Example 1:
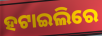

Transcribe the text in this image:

ହଟାଇଲିରେ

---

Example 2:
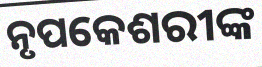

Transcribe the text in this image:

ନୃପକେଶରୀଙ୍କ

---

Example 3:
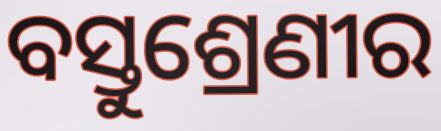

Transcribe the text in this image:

ବସ୍ତୁଶ୍ରେଣୀର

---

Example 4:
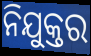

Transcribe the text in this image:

ନିଯୁକ୍ତର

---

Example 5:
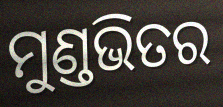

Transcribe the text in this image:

ମୁଣ୍ଡଭିତର